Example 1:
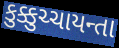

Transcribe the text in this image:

કુક્કુચ્ચાયન્તા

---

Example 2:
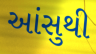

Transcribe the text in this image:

આંસુથી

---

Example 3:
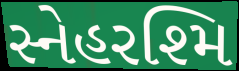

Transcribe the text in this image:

સ્નેહરશ્મિ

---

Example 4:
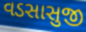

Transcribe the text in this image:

વડસાસુજી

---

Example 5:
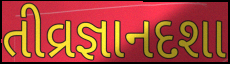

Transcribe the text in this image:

તીવ્રજ્ઞાનદશા